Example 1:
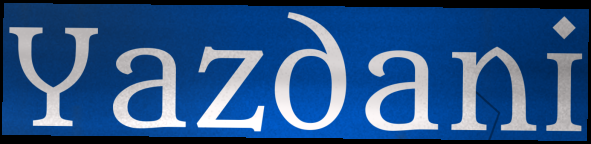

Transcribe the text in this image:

Yazdani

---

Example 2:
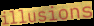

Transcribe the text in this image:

illusions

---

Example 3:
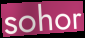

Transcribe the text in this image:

sohor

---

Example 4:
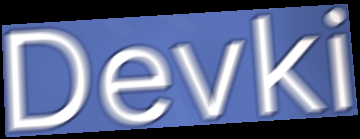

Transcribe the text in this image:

Devki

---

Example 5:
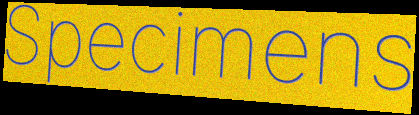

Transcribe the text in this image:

Specimens